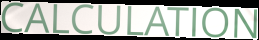
CALCULATION